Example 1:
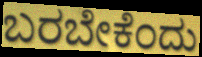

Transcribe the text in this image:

ಬರಬೇಕೆಂದು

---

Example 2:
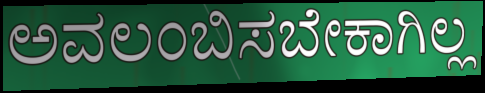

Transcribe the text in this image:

ಅವಲಂಬಿಸಬೇಕಾಗಿಲ್ಲ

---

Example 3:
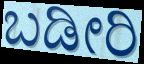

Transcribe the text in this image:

ಬಡೀರಿ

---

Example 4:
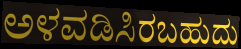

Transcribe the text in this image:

ಅಳವಡಿಸಿರಬಹುದು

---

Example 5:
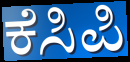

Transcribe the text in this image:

ಕೆಸಿಪಿ